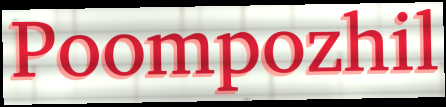
Poompozhil